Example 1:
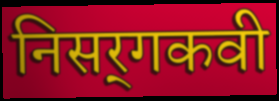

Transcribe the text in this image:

निसर्गकवी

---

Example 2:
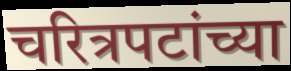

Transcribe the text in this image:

चरित्रपटांच्या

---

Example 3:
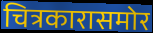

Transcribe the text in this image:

चित्रकारासमोर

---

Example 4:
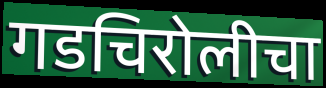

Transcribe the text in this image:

गडचिरोलीचा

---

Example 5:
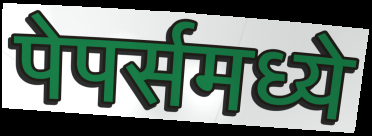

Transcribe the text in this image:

पेपर्समध्ये